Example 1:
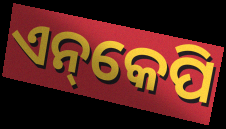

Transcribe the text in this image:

ଏନ୍‌କେପି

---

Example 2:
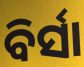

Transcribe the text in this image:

ବିର୍ସା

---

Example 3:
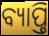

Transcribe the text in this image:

ବ୍ୟାପ୍ତି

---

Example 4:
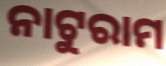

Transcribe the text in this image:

ନାଟୁରାମ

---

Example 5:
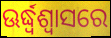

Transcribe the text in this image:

ଊର୍ଦ୍ଧ୍ୱଶ୍ୱାସରେ